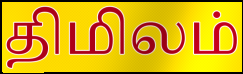
திமிலம்